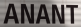
ANANT